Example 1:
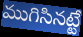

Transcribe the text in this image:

ముగిసినట్టే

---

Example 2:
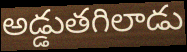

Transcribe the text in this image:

అడ్డుతగిలాడు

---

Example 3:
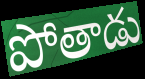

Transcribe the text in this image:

పోతాడు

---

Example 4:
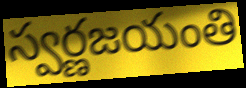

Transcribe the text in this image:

స్వర్ణజయంతి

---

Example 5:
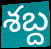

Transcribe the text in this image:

శబ్ద